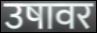
उषावर